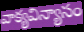
వాక్యవిన్యాసం